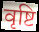
वृष्टि